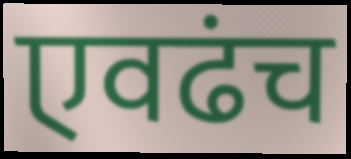
एवढंच